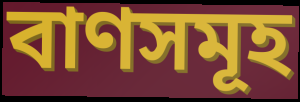
বাণসমূহ